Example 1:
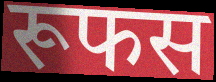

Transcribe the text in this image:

रूफस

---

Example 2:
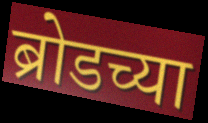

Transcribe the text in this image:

ब्रोडच्या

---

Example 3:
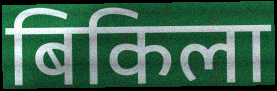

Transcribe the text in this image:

बिकिला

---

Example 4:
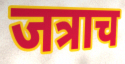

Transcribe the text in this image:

जत्राच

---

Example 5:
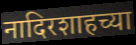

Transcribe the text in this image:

नादिरशाहच्या